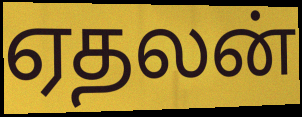
ஏதலன்